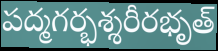
పద్మగర్భశ్శరీరభృత్